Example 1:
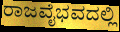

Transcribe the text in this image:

ರಾಜವೈಭವದಲ್ಲಿ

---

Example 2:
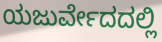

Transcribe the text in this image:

ಯಜುರ್ವೇದದಲ್ಲಿ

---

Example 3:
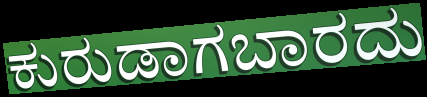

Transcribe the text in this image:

ಕುರುಡಾಗಬಾರದು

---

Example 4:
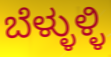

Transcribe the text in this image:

ಬೆಳ್ಳುಳ್ಳಿ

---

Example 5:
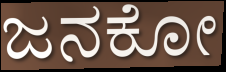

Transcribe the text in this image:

ಜನಕೋ